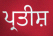
ਪ੍ਰਤੀਸ਼